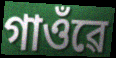
গাওঁৱে